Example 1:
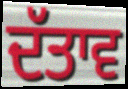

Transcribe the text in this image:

ਦੱਤਾਵ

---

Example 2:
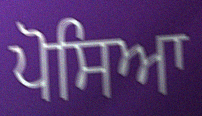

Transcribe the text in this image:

ਪੋਸਿਆ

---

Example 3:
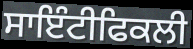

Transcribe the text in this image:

ਸਾਇੰਟੀਫਿਕਲੀ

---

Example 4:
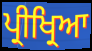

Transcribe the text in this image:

ਪ੍ਰੀਖ੍ਰਿਆ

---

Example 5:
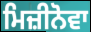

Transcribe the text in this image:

ਮਿਜ਼ੀਨੋਵਾ